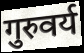
गुरुवर्य